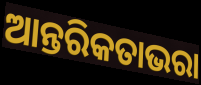
ଆନ୍ତରିକତାଭରା